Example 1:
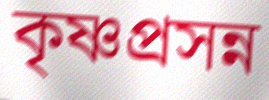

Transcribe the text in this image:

কৃষ্ণপ্রসন্ন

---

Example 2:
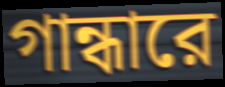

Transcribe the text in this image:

গান্ধারে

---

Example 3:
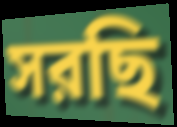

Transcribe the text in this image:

সরছি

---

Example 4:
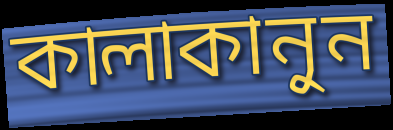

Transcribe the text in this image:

কালাকানুন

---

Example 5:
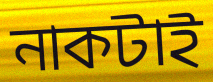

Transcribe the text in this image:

নাকটাই